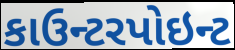
કાઉન્ટરપોઇન્ટ